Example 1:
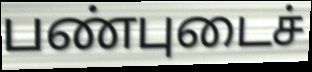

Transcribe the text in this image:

பண்புடைச்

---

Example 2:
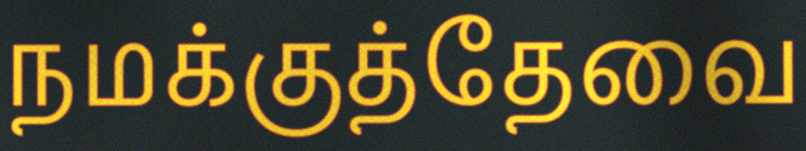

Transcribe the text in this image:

நமக்குத்தேவை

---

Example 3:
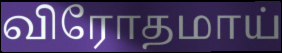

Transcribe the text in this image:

விரோதமாய்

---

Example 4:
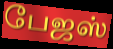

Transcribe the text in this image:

பேஜஸ்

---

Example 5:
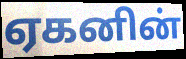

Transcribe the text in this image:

ஏகனின்